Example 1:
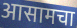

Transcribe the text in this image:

आसामचा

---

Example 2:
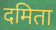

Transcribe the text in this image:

दमिता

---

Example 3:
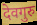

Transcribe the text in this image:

देवगुरु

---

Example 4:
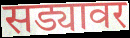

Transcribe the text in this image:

सड्यावर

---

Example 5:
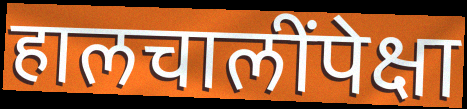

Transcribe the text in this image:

हालचालींपेक्षा